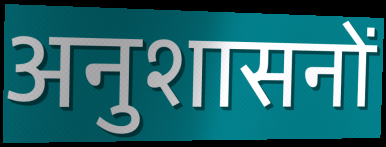
अनुशासनों